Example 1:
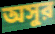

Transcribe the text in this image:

অসুর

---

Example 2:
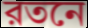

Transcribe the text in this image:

রতনে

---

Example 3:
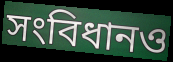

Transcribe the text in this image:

সংবিধানও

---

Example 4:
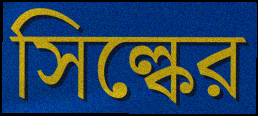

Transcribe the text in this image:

সিল্কের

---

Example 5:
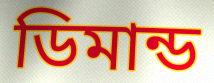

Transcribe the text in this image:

ডিমান্ড